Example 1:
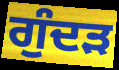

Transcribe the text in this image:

ਗੁੰਦੜ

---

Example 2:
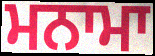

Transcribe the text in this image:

ਮਨਾਮਾ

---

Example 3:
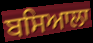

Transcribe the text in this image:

ਬਸਿਆਲਾ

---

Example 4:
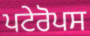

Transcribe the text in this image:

ਪਟੇਰੋਪਸ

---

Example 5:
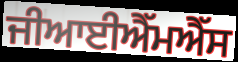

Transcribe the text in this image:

ਜੀਆਈਐੱਮਐੱਸ